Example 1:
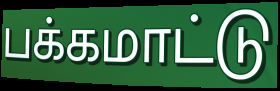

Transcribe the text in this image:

பக்கமாட்டு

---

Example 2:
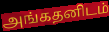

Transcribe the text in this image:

அங்கதனிடம்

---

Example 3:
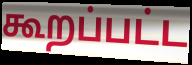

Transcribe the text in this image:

கூறப்பட்ட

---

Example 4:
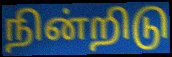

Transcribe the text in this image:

நின்றிடு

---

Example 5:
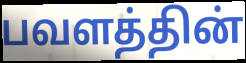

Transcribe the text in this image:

பவளத்தின்